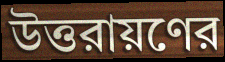
উত্তরায়ণের